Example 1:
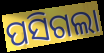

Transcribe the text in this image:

ପସିଗଲା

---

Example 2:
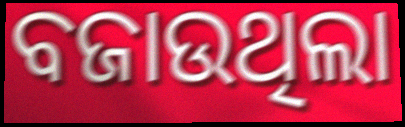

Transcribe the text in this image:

ବଜାଉଥିଲା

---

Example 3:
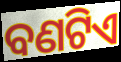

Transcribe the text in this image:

ବଣଟିଏ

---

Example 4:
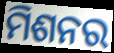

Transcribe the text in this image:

ମିଶନର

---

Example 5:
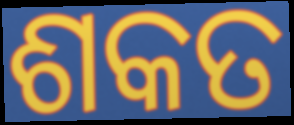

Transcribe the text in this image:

ଶକତ